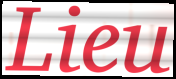
Lieu